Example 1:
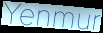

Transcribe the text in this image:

Yenmur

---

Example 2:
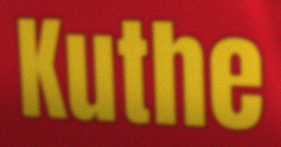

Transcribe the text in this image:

Kuthe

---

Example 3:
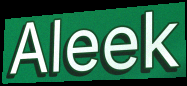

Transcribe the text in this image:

Aleek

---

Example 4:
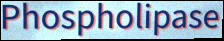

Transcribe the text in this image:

Phospholipase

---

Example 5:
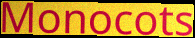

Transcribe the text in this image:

Monocots